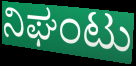
ನಿಘಂಟು